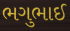
ભગુભાઈ